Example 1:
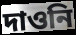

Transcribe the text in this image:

দাওনি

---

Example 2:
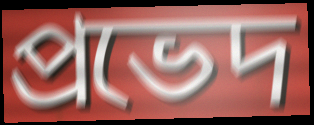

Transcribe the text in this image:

প্রভেদ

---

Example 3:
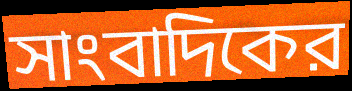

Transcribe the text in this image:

সাংবাদিকের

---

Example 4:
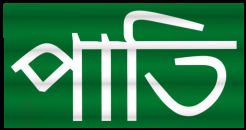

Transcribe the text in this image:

পাতি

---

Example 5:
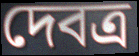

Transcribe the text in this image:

দেবত্র